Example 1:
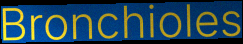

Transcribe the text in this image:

Bronchioles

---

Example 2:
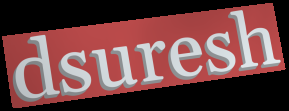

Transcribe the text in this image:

dsuresh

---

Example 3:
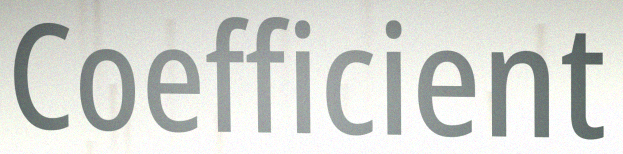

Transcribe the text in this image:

Coefficient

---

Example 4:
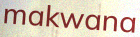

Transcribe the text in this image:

makwana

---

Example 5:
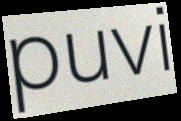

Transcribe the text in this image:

puvi